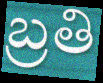
బ్రతి